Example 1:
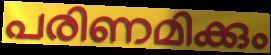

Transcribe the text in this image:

പരിണമിക്കും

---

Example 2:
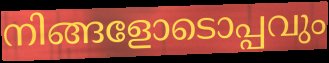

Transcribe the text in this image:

നിങ്ങളോടൊപ്പവും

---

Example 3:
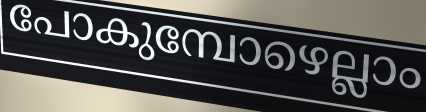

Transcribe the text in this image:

പോകുമ്പോഴെല്ലാം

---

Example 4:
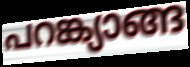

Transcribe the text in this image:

പറങ്ക്യാങ്ങ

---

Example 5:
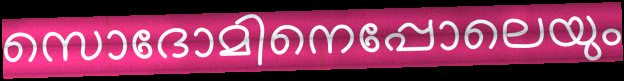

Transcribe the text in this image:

സൊദോമിനെപ്പോലെയും